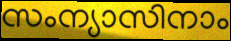
സംന്യാസിനാം